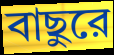
বাছুরে